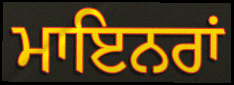
ਮਾਇਨਰਾਂ